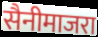
सैनीमाजरा